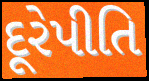
દૂરેપીતિ